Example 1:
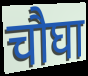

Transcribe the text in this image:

चौघा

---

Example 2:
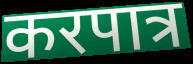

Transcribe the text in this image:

करपात्र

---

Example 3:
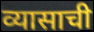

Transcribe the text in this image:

व्यासाची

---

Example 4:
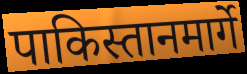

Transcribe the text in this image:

पाकिस्तानमार्गे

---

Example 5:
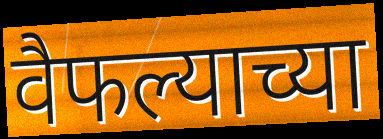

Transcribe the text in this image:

वैफल्याच्या